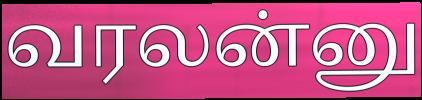
வரலன்னு